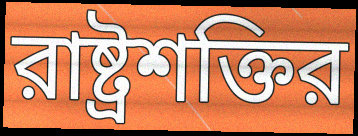
রাষ্ট্রশক্তির